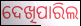
ଦେଖିପାରିଲ